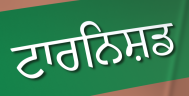
ਟਾਰਨਿਸ਼ਡ